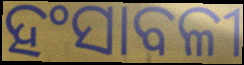
ହଂସାବଳୀ